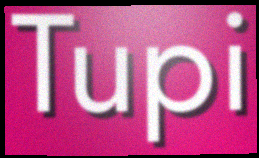
Tupi